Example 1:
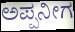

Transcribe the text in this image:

ಅಪ್ಪನೀಗ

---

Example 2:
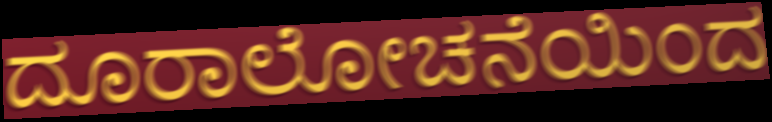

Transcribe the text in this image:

ದೂರಾಲೋಚನೆಯಿಂದ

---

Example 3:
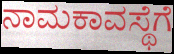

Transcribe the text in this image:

ನಾಮಕಾವಸ್ಥೆಗೆ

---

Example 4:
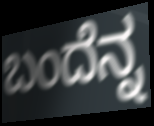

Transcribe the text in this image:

ಬಂದೆನ್ನ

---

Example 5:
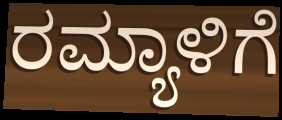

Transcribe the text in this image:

ರಮ್ಯಾಳಿಗೆ